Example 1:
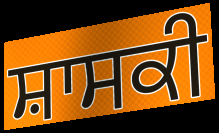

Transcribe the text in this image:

ਸ਼ਾਸਕੀ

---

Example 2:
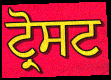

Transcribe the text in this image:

ਟ੍ਰੋਸਟ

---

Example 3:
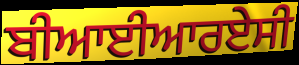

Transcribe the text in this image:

ਬੀਆਈਆਰਏਸੀ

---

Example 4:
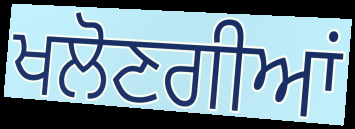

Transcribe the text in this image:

ਖਲੋਣਗੀਆਂ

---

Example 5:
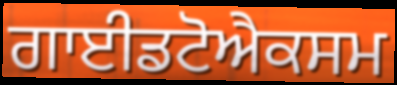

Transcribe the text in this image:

ਗਾਈਡਟੋਐਕਸਮ